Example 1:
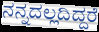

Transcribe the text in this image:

ನನ್ನದಲ್ಲದಿದ್ದರೆ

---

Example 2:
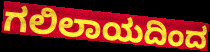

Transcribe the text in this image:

ಗಲಿಲಾಯದಿಂದ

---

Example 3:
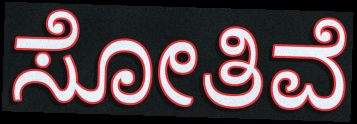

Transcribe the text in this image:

ಸೋತಿವೆ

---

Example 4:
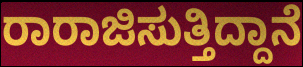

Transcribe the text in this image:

ರಾರಾಜಿಸುತ್ತಿದ್ದಾನೆ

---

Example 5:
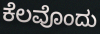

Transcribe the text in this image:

ಕೆಲವೊಂದು